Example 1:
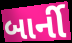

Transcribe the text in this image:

બાર્ની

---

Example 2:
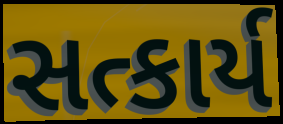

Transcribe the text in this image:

સત્કાર્ય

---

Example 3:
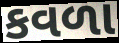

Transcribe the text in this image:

કવળા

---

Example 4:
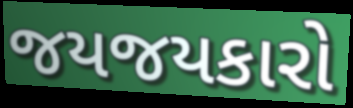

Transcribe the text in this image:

જયજયકારો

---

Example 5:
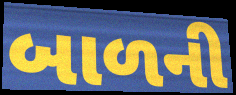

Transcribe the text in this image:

બાળની